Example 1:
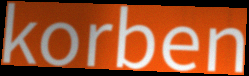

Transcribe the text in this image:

korben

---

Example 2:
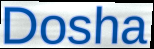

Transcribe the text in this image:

Dosha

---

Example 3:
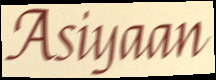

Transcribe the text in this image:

Asiyaan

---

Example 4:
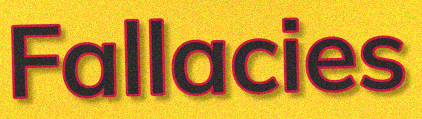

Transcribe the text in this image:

Fallacies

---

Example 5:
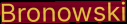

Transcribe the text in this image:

Bronowski